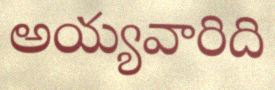
అయ్యవారిది